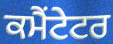
ਕਮੈਂਟੇਟਰ